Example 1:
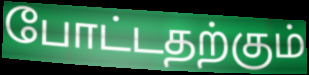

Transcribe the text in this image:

போட்டதற்கும்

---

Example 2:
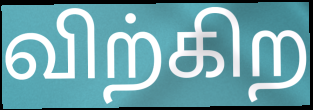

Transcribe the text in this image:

விற்கிற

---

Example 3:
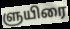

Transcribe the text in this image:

ளுயிரை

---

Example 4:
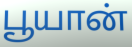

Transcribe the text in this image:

பூயான்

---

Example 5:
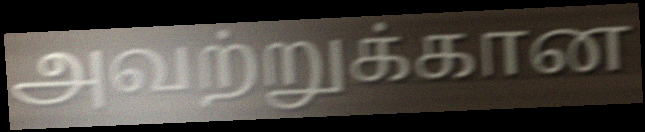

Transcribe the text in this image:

அவற்றுக்கான